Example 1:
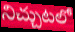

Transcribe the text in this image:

నిచ్చుటలో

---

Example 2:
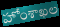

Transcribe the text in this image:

హోంశాఖల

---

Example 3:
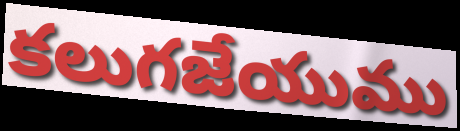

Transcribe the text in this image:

కలుగజేయుము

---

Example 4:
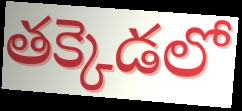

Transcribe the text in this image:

తక్కెడలో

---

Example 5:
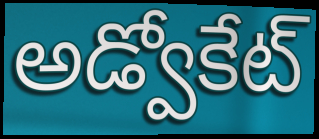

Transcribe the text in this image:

అడ్వోకేట్